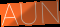
AUN